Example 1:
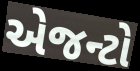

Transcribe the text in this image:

એજન્ટો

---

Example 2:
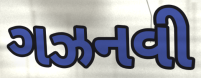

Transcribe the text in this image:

ગઝનવી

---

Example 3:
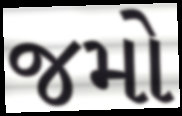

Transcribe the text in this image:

જમો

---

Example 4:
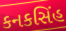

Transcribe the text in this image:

કનકસિંહ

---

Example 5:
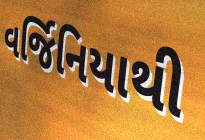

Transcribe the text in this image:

વર્જિનિયાથી